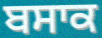
ਬਸਾਕ